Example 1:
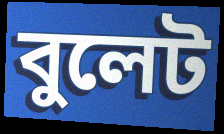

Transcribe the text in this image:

বুলেট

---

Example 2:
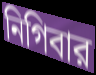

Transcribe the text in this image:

নিগিবার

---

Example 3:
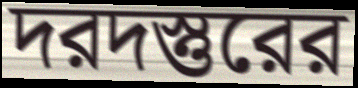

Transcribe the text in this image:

দরদস্তুরের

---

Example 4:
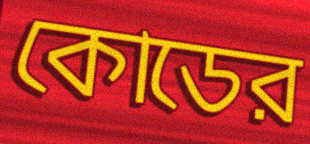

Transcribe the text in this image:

কোডের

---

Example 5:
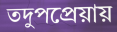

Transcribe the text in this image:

তদুপপ্রেয়ায়